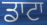
ਡਾਟਾ